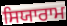
ਸਿਯਾਰਾਮ